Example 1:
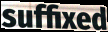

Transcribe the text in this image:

suffixed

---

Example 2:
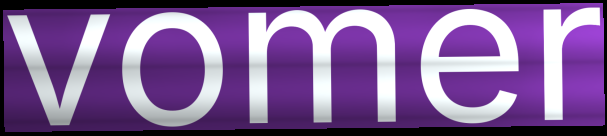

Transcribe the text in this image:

vomer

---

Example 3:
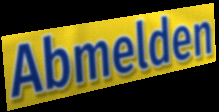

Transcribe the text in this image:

Abmelden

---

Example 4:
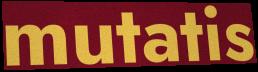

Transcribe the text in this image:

mutatis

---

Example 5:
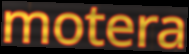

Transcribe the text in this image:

motera